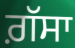
ਗ਼ੱਸਾ